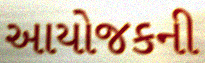
આયોજકની